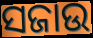
ସଜାଉ